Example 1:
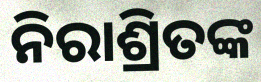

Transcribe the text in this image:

ନିରାଶ୍ରିତଙ୍କ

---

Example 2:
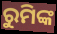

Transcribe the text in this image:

ରୁମିଙ୍କ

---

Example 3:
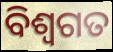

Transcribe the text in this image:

ବିଶ୍ଵଗତ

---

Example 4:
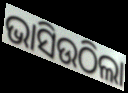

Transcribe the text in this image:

ଭାସିଉଠିଲା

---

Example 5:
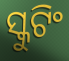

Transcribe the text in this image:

ସ୍କୁଟିଂ